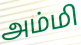
அம்மி